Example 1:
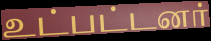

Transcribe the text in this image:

உட்பட்டனர்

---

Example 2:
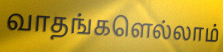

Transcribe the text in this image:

வாதங்களெல்லாம்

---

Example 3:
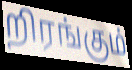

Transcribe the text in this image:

றிரங்கும்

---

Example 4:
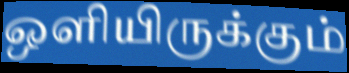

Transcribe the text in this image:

ஒளியிருக்கும்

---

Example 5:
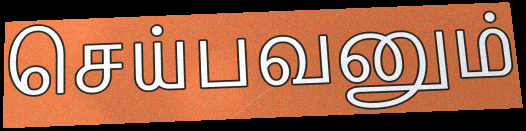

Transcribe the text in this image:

செய்பவனும்